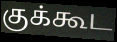
குக்கூட